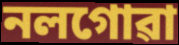
নলগোৱা